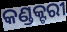
କଣ୍ଡକ୍ଟରୀ